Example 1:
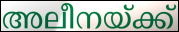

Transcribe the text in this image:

അലീനയ്ക്ക്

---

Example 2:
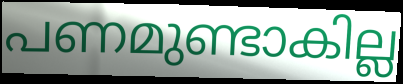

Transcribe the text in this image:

പണമുണ്ടാകില്ല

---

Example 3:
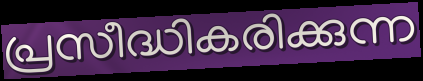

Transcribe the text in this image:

പ്രസീദ്ധികരിക്കുന്ന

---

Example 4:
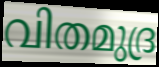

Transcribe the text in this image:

വിതമുദ്ര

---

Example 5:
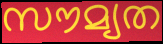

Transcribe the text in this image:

സൗമ്യത